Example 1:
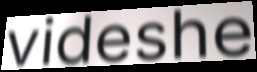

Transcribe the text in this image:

videshe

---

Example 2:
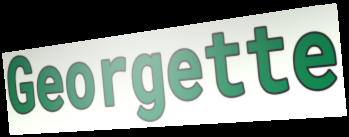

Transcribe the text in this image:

Georgette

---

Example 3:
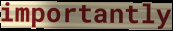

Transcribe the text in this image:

importantly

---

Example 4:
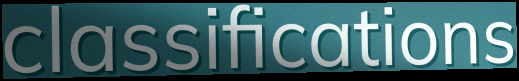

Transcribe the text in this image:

classifications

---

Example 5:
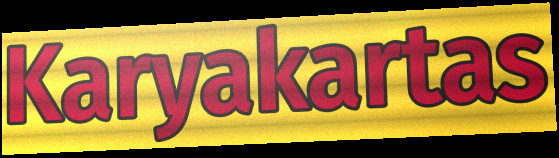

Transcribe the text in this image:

Karyakartas